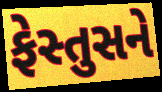
ફેસ્તુસને